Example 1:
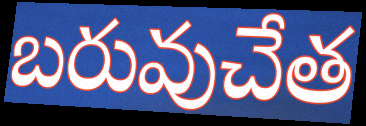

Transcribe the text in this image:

బరువుచేత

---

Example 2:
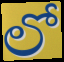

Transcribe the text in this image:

లో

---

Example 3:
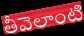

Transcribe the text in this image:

తీవెలాంటి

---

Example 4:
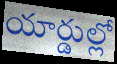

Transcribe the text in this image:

యార్డుల్లో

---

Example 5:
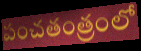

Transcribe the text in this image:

పంచతంత్రంలో